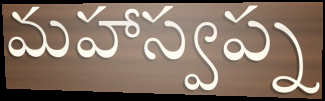
మహాస్వప్న